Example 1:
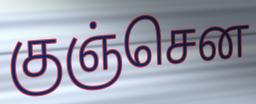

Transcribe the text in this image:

குஞ்சென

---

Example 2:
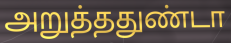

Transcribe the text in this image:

அறுத்ததுண்டா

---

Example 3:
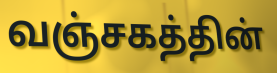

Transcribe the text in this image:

வஞ்சகத்தின்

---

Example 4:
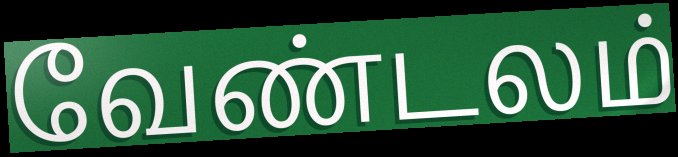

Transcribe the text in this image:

வேண்டலம்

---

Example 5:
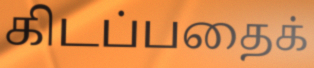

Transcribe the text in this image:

கிடப்பதைக்